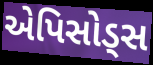
એપિસોડ્સ